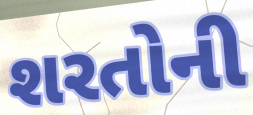
શરતોની